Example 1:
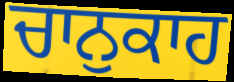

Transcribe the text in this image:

ਚਾਨੁਕਾਹ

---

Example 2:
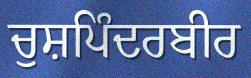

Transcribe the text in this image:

ਚੁਸ਼ਪਿੰਦਰਬੀਰ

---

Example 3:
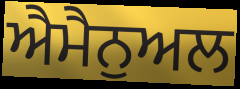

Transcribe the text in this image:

ਐਮੈਨੁਅਲ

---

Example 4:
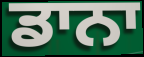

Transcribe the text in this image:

ਡਾਨਾ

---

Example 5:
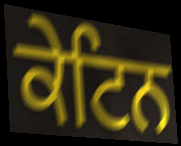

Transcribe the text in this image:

ਕੇਟਿਨ